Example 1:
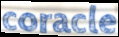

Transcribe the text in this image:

coracle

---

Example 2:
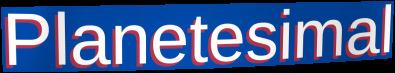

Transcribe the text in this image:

Planetesimal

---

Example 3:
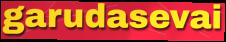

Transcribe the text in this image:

garudasevai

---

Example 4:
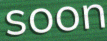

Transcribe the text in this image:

soon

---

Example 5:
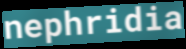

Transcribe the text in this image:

nephridia